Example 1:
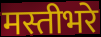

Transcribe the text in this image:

मस्तीभरे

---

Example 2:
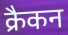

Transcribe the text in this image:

क्रैकन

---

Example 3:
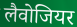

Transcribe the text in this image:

लैवोजियर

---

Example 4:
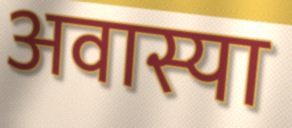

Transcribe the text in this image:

अवास्या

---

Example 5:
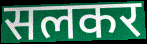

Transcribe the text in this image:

सलकर